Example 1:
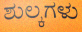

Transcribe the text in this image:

ಶುಲ್ಕಗಳು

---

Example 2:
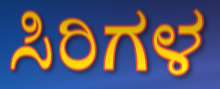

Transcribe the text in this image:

ಸಿರಿಗಳ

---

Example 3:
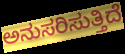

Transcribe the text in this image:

ಅನುಸರಿಸುತ್ತಿದೆ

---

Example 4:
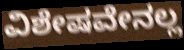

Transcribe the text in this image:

ವಿಶೇಷವೇನಲ್ಲ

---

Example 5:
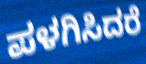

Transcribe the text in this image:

ಪಳಗಿಸಿದರೆ